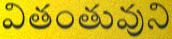
వితంతువుని